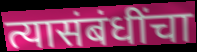
त्यासंबंधींचा